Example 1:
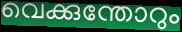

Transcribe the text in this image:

വെക്കുന്തോറും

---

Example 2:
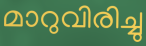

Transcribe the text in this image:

മാറുവിരിച്ചു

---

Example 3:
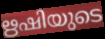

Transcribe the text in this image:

ഋഷിയുടെ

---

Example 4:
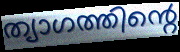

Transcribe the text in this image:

ത്യാഗത്തിന്റെ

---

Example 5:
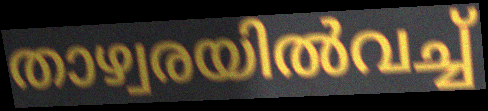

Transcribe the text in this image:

താഴ്വരയിൽവച്ച്